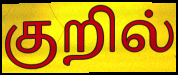
குறில்